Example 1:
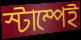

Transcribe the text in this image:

স্টাম্পেই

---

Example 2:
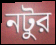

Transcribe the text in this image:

নটুর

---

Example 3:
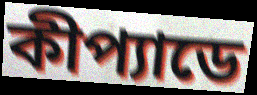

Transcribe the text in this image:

কীপ্যাডে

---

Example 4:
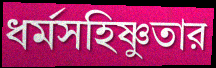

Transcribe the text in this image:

ধর্মসহিষ্ণুতার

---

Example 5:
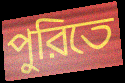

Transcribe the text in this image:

পুরিতে